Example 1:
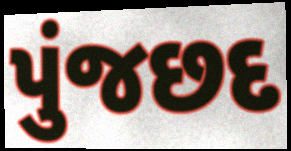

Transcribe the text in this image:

પુંજછદ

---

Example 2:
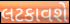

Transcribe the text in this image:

લટકાવશે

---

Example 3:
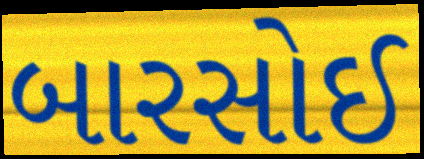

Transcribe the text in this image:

બારસોઈ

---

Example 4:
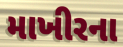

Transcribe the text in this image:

માખીરના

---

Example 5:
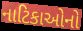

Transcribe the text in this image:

નાટિકાઓનો